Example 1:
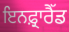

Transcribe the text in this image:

ਇਨਫ਼੍ਰਾਰੈੱਡ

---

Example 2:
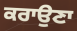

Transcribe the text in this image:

ਕਰਾਉਣਾ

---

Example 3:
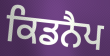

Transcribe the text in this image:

ਕਿਡਨੈਪ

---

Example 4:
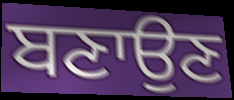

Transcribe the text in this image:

ਬਣਾਉਣ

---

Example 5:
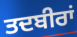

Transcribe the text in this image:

ਤਦਬੀਰਾਂ